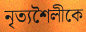
নৃত্যশৈলীকে